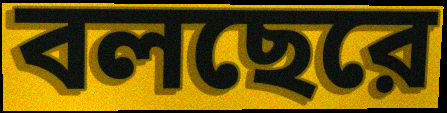
বলছেরে